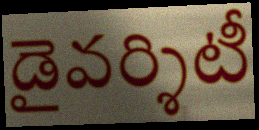
డైవర్శిటీ